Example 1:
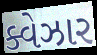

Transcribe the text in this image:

ક્વેઝાર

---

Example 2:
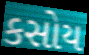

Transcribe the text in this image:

કસોય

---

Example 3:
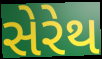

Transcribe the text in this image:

સેરેથ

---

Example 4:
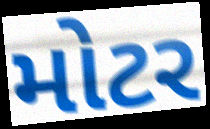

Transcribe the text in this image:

મોટર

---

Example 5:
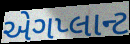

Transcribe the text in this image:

એગપ્લાન્ટ